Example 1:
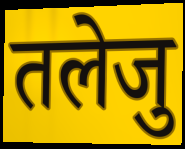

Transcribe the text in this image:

तलेजु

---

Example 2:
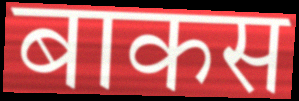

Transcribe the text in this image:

बाकस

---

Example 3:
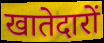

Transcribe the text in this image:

खातेदारों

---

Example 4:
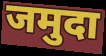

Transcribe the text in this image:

जमुदा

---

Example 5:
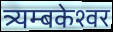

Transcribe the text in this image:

त्र्यम्बकेश्वर